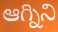
ఆగ్నిని